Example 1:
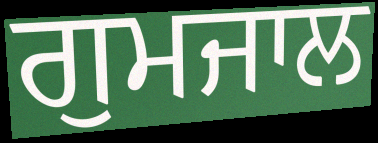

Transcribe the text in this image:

ਗੁਮਜਾਲ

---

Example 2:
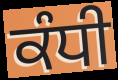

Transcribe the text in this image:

ਕੰਧੀ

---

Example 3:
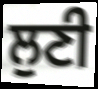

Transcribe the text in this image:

ਲੁਣੀ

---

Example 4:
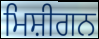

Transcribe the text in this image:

ਮਿਸ਼ੀਗਨ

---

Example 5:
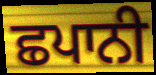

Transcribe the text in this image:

ਛਪਾਨੀ